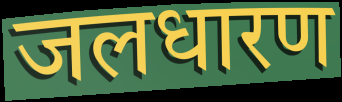
जलधारण